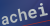
achei